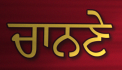
ਚਾਨਣੇ